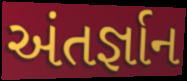
અંતર્જ્ઞાન